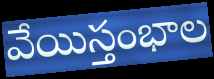
వేయిస్తంభాల